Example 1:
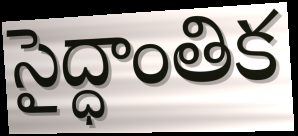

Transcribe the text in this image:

సైద్ధాంతిక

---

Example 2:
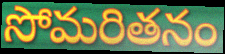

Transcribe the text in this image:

సోమరితనం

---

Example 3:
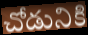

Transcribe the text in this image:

చోడునికి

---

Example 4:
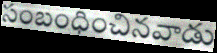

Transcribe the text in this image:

సంబంధించినవాడు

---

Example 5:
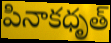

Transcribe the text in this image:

పినాకధృత్